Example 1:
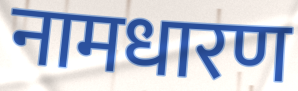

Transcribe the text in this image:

नामधारण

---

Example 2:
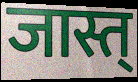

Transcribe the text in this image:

जास्त्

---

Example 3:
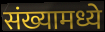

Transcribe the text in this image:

संख्यामध्ये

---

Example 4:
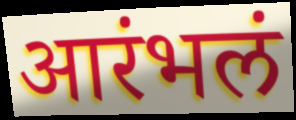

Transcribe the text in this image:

आरंभलं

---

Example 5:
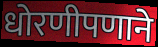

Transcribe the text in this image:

धोरणीपणाने